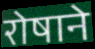
रोषाने